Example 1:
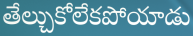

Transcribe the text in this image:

తేల్చుకోలేకపోయాడు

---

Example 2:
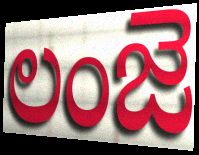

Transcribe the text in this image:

లంజె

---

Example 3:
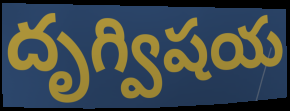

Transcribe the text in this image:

దృగ్విషయ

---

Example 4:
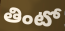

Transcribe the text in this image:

తింటో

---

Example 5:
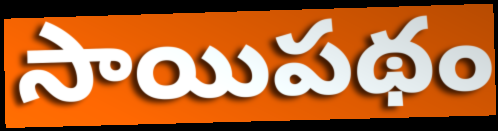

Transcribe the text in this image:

సాయిపథం